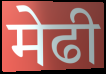
मेढी